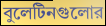
বুলেটিনগুলোর